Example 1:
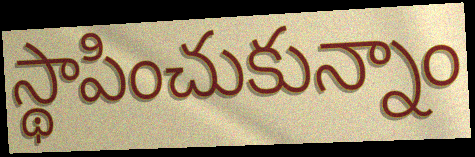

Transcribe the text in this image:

స్థాపించుకున్నాం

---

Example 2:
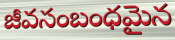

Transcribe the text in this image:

జీవసంబంధమైన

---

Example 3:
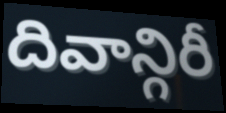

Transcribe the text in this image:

దివాన్గిరీ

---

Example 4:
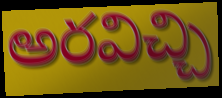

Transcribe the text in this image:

అరవిచ్చి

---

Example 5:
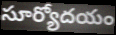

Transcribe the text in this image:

సూర్యోదయం